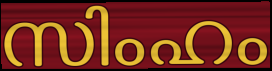
സിംഹം